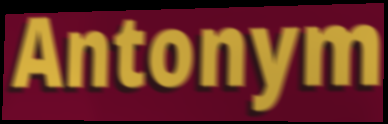
Antonym